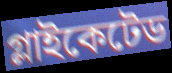
গ্লাইকেটেড